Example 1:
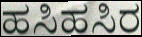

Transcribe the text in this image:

ಹಸಿಹಸಿರ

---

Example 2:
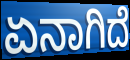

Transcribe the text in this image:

ಏನಾಗಿದೆ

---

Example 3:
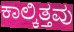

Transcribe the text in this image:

ಕಾಲ್ಕಿತ್ತವು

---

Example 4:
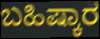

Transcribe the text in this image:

ಬಹಿಷ್ಕಾರ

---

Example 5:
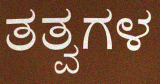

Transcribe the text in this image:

ತತ್ವಗಳ